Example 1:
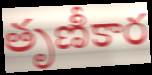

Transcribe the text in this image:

తృణీకార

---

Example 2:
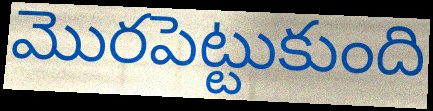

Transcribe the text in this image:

మొరపెట్టుకుంది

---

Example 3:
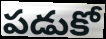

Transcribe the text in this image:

పడుకో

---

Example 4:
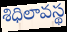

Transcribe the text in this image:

శిధిలావస్థ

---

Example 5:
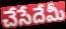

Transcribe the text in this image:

చేసేదేమీ